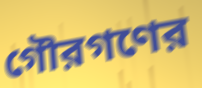
গৌরগণের